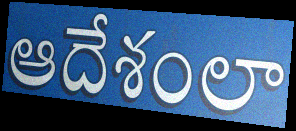
ఆదేశంలా